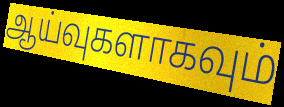
ஆய்வுகளாகவும்